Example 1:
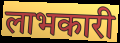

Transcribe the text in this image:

लाभकारी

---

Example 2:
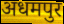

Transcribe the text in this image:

अधमपुर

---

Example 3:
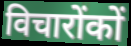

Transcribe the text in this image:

विचारोंकों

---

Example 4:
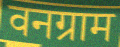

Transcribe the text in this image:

वनग्राम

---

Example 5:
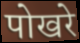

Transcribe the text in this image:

पोखरे